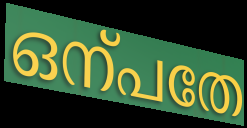
ഒന്പതേ